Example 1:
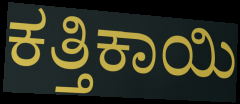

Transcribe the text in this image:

ಕತ್ತಿಕಾಯಿ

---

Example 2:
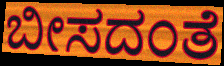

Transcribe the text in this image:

ಬೀಸದಂತೆ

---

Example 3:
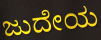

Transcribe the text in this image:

ಜುದೇಯ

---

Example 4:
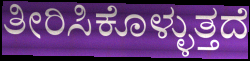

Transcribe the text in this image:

ತೀರಿಸಿಕೊಳ್ಳುತ್ತದೆ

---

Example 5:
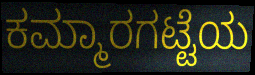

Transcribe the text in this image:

ಕಮ್ಮಾರಗಟ್ಟೆಯ